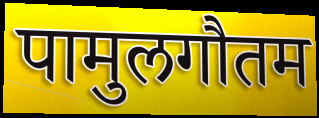
पामुलगौतम